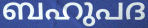
ബഹുപദ